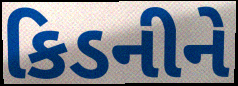
કિડનીને